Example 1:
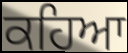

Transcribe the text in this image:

ਕਹਿਆ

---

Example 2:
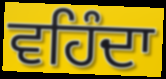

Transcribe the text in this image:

ਵਹਿੰਦਾ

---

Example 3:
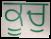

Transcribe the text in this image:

ਕੂਚੁ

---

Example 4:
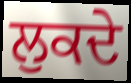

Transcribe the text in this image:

ਲੁਕਦੇ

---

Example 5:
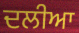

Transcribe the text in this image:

ਦਲੀਆ